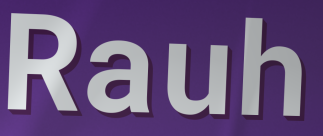
Rauh